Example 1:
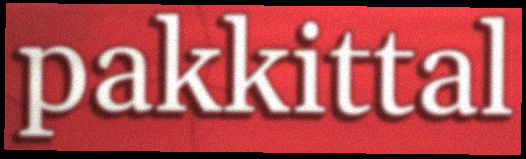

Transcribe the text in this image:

pakkittal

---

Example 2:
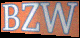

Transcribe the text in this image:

BZW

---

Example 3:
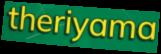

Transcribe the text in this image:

theriyama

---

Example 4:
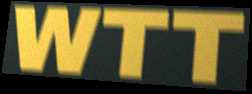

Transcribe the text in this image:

WTT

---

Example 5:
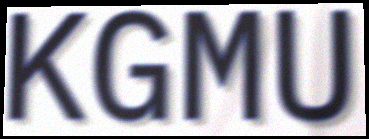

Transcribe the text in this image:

KGMU